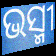
ଭସ୍ମୀ